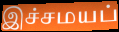
இச்சமயப்